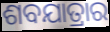
ଶବଯାତ୍ରାର